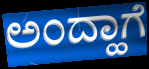
ಅಂದ್ಹಾಗೆ